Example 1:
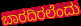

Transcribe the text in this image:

ಬಾರದಿರಲೆಂದು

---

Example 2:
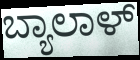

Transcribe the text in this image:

ಬ್ಯಾಲಾಳ್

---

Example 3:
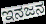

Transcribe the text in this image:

ಇನಜನ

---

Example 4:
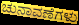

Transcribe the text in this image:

ಚುನಾವಣೆಗಳು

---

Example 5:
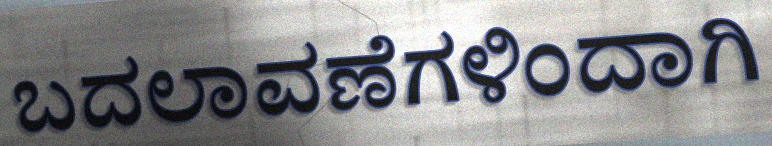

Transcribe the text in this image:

ಬದಲಾವಣೆಗಳಿಂದಾಗಿ